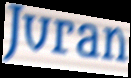
Juran